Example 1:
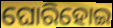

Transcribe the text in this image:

ଘୋରିହୋଇ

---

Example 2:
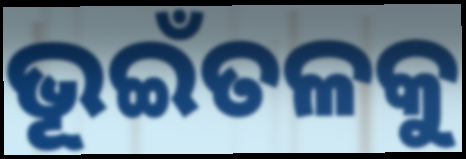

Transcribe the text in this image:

ଭୂଇଁତଳକୁ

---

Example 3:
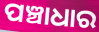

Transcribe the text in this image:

ପଞ୍ଚାଧାର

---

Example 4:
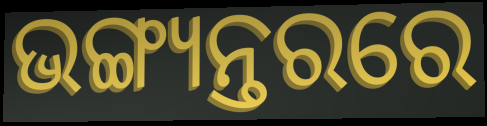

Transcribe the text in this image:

ଭଙ୍ଗ୍ୟନ୍ତରରେ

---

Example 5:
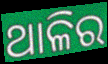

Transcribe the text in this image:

ଥାଳିର